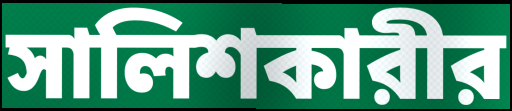
সালিশকারীর